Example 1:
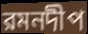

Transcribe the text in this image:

রমনদীপ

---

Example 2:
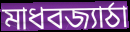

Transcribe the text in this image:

মাধবজ্যাঠা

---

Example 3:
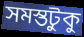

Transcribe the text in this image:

সমস্তটুকু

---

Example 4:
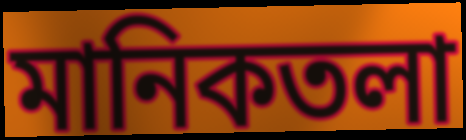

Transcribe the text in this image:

মানিকতলা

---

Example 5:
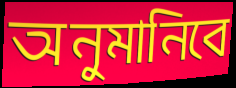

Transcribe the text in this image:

অনুমানিবে